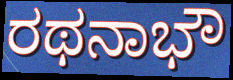
ರಥನಾಭೌ